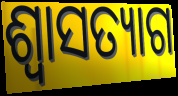
ଶ୍ବାସତ୍ୟାଗ